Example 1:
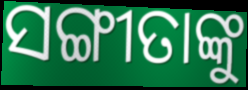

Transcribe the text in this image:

ସଙ୍ଗୀତାଙ୍କୁ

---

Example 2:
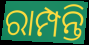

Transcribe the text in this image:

ରାମ୍ପନ୍ତି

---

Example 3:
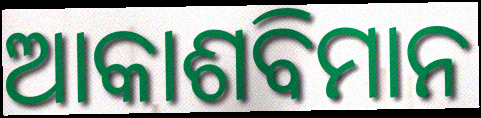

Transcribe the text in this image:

ଆକାଶବିମାନ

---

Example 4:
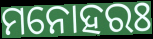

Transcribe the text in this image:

ମନୋହରଃ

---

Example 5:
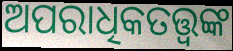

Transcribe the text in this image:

ଅପରାଧିକତତ୍ତ୍ୱଙ୍କ